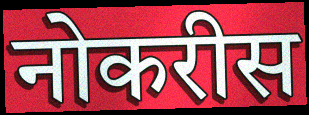
नोकरीस